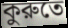
কুরুতে